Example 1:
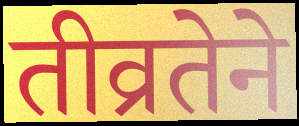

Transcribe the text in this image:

तीव्रतेने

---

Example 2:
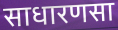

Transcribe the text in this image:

साधारणसा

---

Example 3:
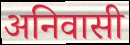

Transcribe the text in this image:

अनिवासी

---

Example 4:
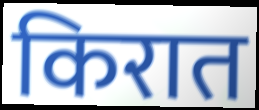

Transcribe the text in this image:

किरात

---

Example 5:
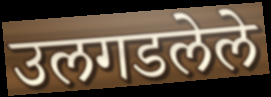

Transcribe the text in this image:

उलगडलेले